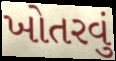
ખોતરવું